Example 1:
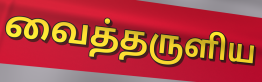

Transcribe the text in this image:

வைத்தருளிய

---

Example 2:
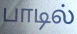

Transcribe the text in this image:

பாடில்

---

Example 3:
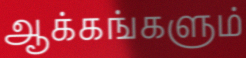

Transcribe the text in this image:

ஆக்கங்களும்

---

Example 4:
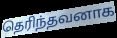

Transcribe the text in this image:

தெரிந்தவனாக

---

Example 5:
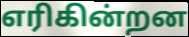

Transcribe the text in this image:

எரிகின்றன